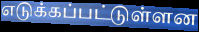
எடுக்கப்பட்டுள்ளன